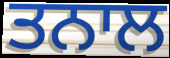
ਤਨਾਲ